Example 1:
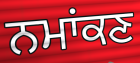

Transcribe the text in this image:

ਨਮਾਂਕਣ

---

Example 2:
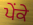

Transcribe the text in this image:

ਪੇਂਕੇ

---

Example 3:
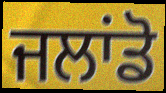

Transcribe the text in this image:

ਜਲਾਂਡੋ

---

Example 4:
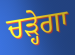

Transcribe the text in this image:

ਚੜ੍ਹੇਗਾ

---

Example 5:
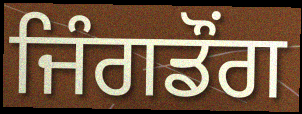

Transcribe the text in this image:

ਜਿੰਗਡੌਂਗ